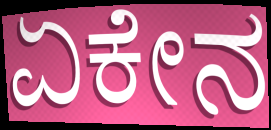
ಏಕೇನ